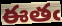
ఈతఁ